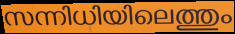
സന്നിധിയിലെത്തും